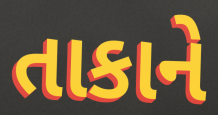
તાકાને